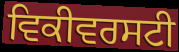
ਵਿਕੀਵਰਸਟੀ